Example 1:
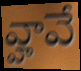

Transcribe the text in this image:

వ్హావే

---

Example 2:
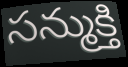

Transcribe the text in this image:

సన్ముక్తి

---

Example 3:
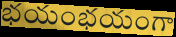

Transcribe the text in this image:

భయంభయంగా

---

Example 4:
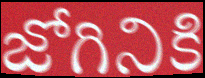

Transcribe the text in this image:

జోగినికి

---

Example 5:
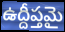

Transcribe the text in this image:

ఉద్దీప్తమై